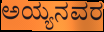
ಅಯ್ಯನವರ